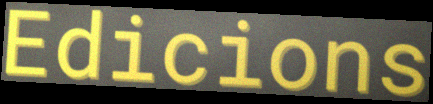
Edicions